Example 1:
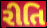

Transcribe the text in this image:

રીતિ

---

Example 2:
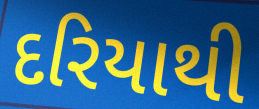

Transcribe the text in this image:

દરિયાથી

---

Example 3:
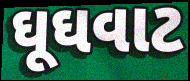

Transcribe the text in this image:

ઘૂઘવાટ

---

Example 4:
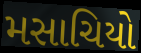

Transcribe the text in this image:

મસાચિયો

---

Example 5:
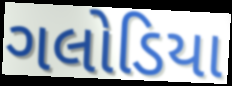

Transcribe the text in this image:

ગલોડિયા